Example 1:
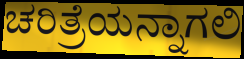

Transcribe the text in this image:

ಚರಿತ್ರೆಯನ್ನಾಗಲಿ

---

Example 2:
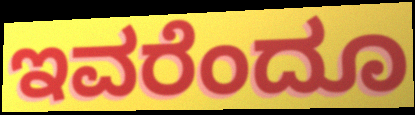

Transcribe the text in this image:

ಇವರೆಂದೂ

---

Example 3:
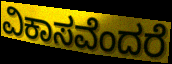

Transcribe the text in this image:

ವಿಕಾಸವೆಂದರೆ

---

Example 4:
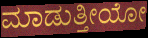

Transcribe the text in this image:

ಮಾಡುತ್ತೀಯೋ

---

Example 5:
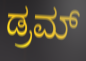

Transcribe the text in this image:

ಡ್ರಮ್